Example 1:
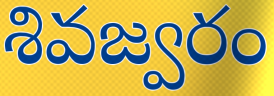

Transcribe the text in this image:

శివజ్వరం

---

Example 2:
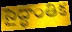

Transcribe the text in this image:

సైద్ధాంతిక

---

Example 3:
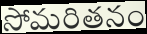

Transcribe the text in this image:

సోమరితనం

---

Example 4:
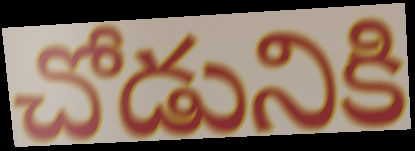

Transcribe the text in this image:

చోడునికి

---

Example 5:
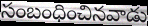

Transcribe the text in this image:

సంబంధించినవాడు